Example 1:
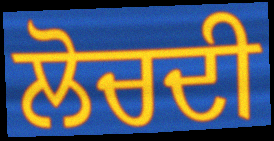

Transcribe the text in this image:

ਲੋਚਦੀ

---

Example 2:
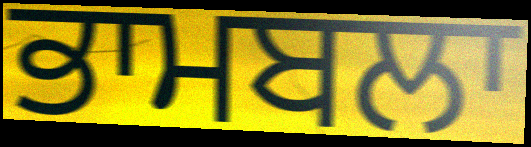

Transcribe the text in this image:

ਭਾਮਬਲਾ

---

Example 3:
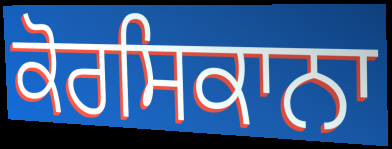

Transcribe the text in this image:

ਕੋਰਸਿਕਾਨਾ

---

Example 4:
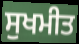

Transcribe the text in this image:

ਸੁਖਮੀਤ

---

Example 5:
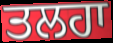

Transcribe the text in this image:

ਤਲਹਾ